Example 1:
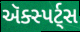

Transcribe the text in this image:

ઍક્સ્પર્ટ્સ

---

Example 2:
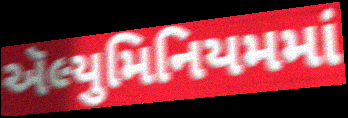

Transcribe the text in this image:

ઍલ્યુમિનિયમમાં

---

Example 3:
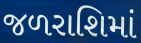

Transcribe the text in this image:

જળરાશિમાં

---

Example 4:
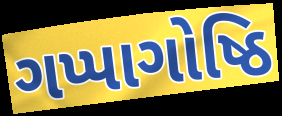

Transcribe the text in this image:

ગપ્પાગોષ્ઠિ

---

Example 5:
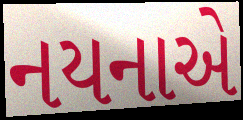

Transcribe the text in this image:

નયનાએ